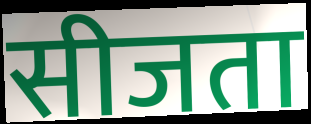
सीजता